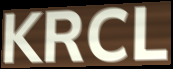
KRCL